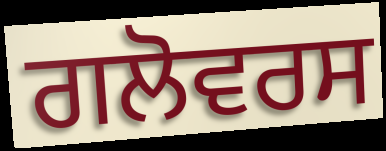
ਗਲੋਵਰਸ